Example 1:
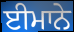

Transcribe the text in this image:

ਈਮਾਨੇ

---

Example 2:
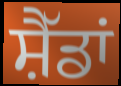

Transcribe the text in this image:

ਸ਼ੈੱਡਾਂ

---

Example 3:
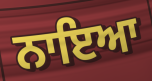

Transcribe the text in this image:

ਨਾਇਆ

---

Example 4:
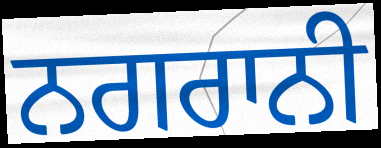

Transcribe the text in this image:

ਨਗਰਾਨੀ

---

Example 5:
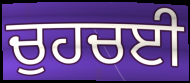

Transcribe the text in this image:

ਚੁਹਚਈ